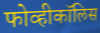
फोव्हीकॉलिस